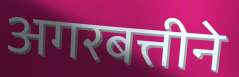
अगरबत्तीने